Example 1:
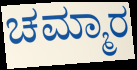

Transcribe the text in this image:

ಚಮ್ಮಾರ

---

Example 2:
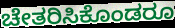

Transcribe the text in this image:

ಚೇತರಿಸಿಕೊಂಡರೂ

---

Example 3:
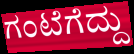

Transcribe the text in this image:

ಗಂಟೆಗೆದ್ದು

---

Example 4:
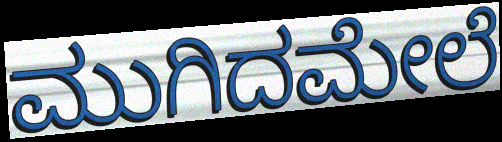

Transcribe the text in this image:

ಮುಗಿದಮೇಲೆ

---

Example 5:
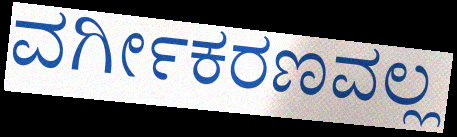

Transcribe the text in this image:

ವರ್ಗೀಕರಣವಲ್ಲ